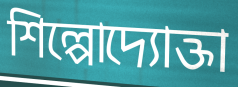
শিল্পোদ্যোক্তা